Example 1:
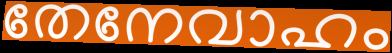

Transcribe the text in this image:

തേനേവാഹം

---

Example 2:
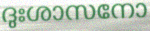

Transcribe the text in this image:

ദുഃശാസനോ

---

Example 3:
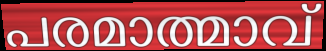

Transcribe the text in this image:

പരമാത്മാവ്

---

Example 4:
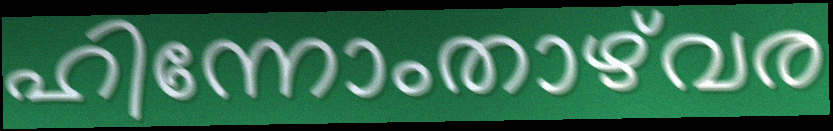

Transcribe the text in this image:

ഹിന്നോംതാഴ്‌വര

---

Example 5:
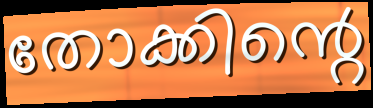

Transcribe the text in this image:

തോക്കിന്റെ